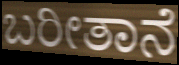
ಬರೀತಾನೆ